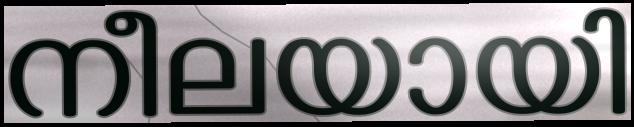
നീലയായി